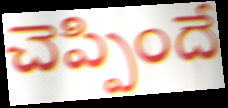
చెప్పిందే